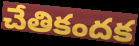
చేతికందక